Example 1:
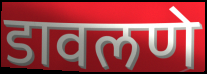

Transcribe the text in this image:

डावलणे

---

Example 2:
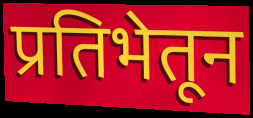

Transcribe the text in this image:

प्रतिभेतून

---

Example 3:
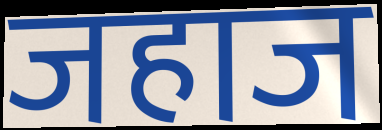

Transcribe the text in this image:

जहाज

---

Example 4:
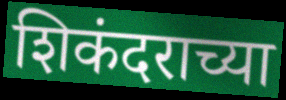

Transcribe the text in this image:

शिकंदराच्या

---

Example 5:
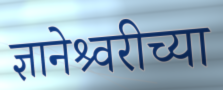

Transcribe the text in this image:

ज्ञानेश्र्वरीच्या